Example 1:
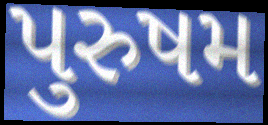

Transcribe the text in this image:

પુરુષમ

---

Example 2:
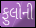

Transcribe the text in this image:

ફુલોની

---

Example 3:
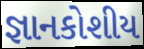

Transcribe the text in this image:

જ્ઞાનકોશીય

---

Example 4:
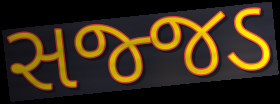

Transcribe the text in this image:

સજ્જડ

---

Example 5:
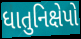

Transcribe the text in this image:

ધાતુનિક્ષેપો